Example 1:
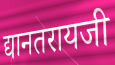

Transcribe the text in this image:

द्यानतरायजी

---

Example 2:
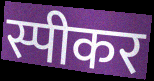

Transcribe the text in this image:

स्‍पीकर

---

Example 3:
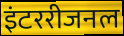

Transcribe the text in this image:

इंटररीजनल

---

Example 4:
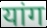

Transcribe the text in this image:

यांग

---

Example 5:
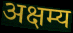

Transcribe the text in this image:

अक्षम्‍य